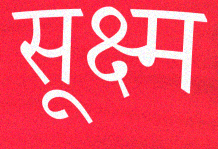
सूक्ष्म